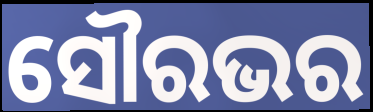
ସୌରଭର